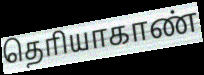
தெரியாகாண்